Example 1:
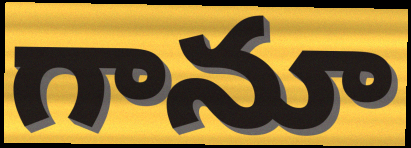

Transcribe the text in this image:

గానూ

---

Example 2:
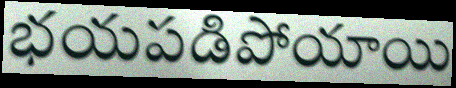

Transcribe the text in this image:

భయపడిపోయాయి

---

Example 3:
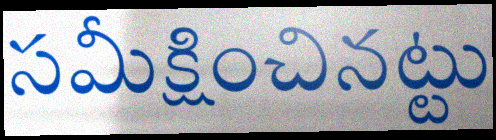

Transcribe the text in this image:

సమీక్షించినట్టు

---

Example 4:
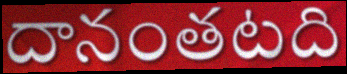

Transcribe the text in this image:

దానంతటది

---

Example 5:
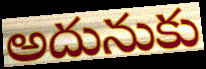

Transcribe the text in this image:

అదునుకు